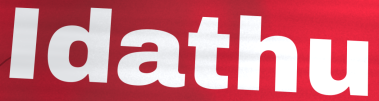
Idathu